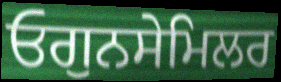
ਓਗੁਨਸੇਮਿਲਰ